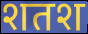
शतश